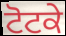
ਟੋਟਕੇ